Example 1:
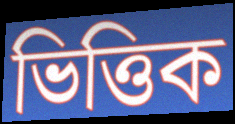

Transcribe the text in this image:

ভিত্তিক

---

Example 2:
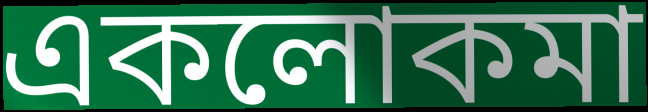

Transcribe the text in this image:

একলোকমা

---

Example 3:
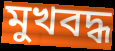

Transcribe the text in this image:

মুখবদ্ধ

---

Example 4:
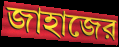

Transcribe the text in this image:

জাহাজের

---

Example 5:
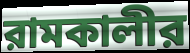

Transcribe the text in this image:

রামকালীর